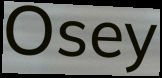
Osey